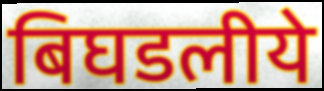
बिघडलीये